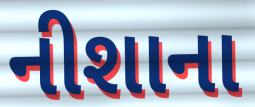
નીશાના